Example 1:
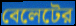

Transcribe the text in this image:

বেলেটের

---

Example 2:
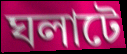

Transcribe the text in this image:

ঘলাটে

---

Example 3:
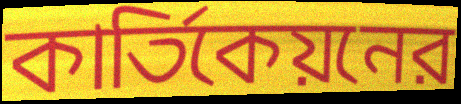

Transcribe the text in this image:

কার্তিকেয়নের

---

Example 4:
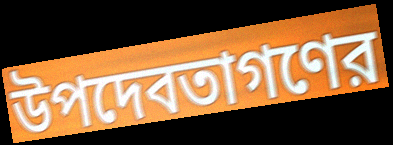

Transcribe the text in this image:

উপদেবতাগণের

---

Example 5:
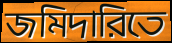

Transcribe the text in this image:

জমিদারিতে